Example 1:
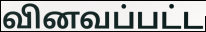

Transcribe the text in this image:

வினவப்பட்ட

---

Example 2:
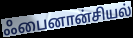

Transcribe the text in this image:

ஃபைனான்சியல்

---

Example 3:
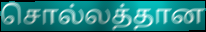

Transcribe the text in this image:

சொல்லத்தான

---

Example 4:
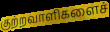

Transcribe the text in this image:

குற்றவாளிகளைச்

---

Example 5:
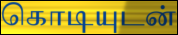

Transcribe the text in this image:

கொடியுடன்